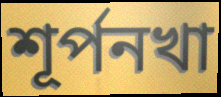
শূর্পনখা